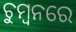
ଚୁମ୍ବନରେ